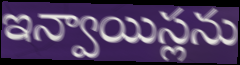
ఇన్వాయిస్లను